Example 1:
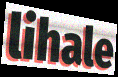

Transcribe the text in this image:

lihale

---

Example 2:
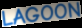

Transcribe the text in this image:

LAGOON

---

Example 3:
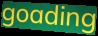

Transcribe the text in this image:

goading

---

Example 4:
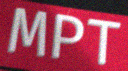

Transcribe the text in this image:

MPT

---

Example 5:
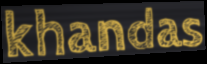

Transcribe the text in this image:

khandas